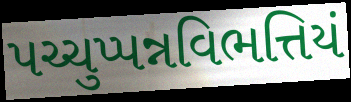
પચ્ચુપ્પન્નવિભત્તિયં